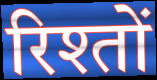
रिश्तों